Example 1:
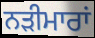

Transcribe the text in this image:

ਨੜੀਮਾਰਾਂ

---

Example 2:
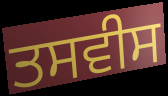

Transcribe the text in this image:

ਤਸਵੀਸ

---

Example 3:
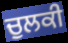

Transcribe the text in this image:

ਚੁਲਕੀ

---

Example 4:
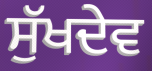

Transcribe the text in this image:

ਸੁੱਖਦੇਵ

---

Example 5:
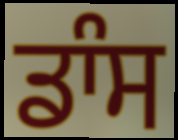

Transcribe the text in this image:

ਡਾੰਸ